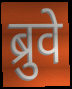
ब्रुवे